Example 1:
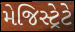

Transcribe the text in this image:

મેજિસ્ટ્રેટે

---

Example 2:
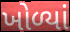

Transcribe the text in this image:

ખોળ્યાં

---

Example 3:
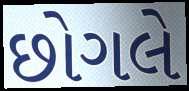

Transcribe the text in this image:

છોગલે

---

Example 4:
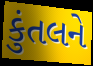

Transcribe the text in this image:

કુંતલને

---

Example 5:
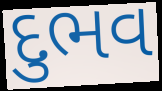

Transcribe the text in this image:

દુભવ